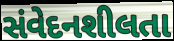
સંવેદનશીલતા